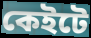
কেইটে